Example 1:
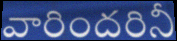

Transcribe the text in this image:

వారిందరినీ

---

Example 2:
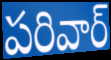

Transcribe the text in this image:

పరివార్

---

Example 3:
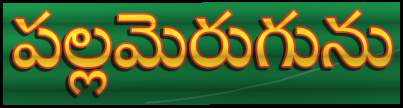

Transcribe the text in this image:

పల్లమెరుగును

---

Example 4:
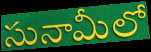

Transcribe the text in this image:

సునామీలో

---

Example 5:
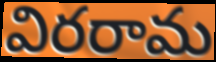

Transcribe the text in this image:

విరరామ